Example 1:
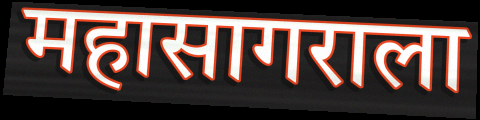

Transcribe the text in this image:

महासागराला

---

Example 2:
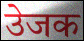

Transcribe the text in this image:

उेजक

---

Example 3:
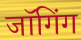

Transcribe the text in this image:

जॉगिंग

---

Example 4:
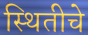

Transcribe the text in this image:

स्थितीचे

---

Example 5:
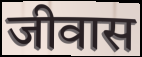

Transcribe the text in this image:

जीवास